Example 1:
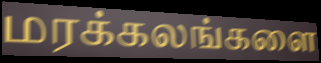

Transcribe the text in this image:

மரக்கலங்களை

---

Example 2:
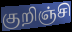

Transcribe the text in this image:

குறிஞ்சி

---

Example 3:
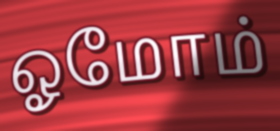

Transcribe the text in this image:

ஓமோம்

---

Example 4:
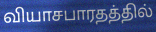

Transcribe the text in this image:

வியாசபாரதத்தில்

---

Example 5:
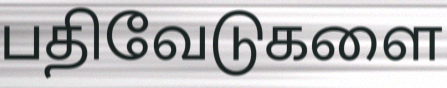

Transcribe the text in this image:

பதிவேடுகளை